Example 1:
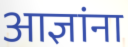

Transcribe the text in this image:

आज्ञांना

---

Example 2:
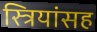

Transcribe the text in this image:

स्त्रियांसह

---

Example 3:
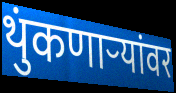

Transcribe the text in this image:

थुंकणाऱ्यांवर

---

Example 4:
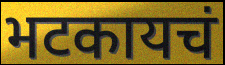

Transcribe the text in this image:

भटकायचं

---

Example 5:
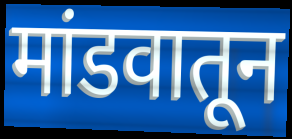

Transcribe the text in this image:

मांडवातून